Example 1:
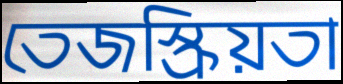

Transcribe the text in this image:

তেজস্ক্রিয়তা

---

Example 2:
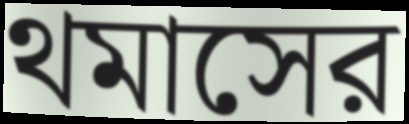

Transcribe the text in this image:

থমাসের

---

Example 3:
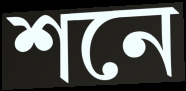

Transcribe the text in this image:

শনে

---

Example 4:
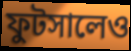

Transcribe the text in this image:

ফুটসালেও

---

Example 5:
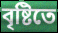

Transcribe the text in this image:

বৃষ্টিতে